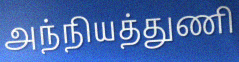
அந்நியத்துணி